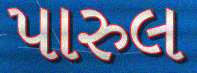
પારુલ